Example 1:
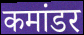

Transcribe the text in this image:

कमांडर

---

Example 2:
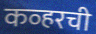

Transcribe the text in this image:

कव्हरची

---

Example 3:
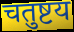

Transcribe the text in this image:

चतुष्टय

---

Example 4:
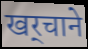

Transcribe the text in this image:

खर्चाने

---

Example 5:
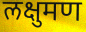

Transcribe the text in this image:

लक्षुमण